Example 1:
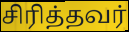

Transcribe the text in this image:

சிரித்தவர்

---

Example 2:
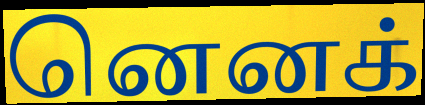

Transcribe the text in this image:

னெனக்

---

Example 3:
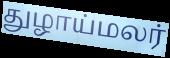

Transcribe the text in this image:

துழாய்மலர்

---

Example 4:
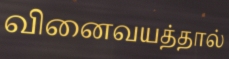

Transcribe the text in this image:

வினைவயத்தால்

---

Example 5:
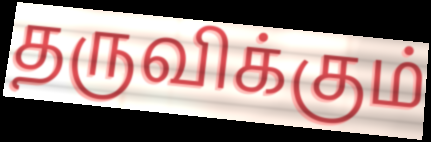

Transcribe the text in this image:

தருவிக்கும்